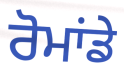
ਰੋਮਾਂਡੇ